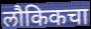
लौकिकचा